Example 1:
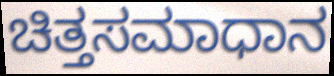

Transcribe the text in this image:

ಚಿತ್ತಸಮಾಧಾನ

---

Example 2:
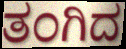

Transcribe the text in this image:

ತಂಗಿದ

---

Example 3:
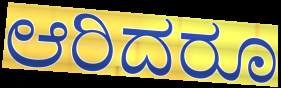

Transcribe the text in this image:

ಆರಿದರೂ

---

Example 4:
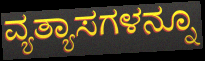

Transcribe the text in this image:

ವ್ಯತ್ಯಾಸಗಳನ್ನೂ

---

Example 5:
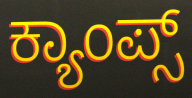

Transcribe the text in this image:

ಕ್ಯಾಂಪ್ಸ್